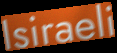
Isiraeli